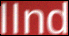
IInd